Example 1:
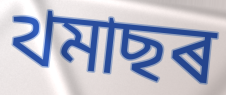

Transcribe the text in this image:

থমাছৰ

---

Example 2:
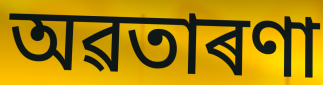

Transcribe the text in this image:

অৱতাৰণা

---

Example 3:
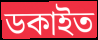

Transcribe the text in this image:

ডকাইত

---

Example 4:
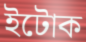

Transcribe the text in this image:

ইটোক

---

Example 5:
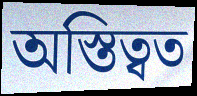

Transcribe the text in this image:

অস্তিত্বত